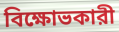
বিক্ষোভকারী